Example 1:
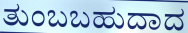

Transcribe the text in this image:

ತುಂಬಬಹುದಾದ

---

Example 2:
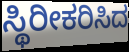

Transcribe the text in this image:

ಸ್ಥಿರೀಕರಿಸಿದ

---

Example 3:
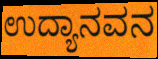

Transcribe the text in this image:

ಉದ್ಯಾನವನ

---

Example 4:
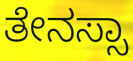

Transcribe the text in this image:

ತೇನಸ್ಸಾ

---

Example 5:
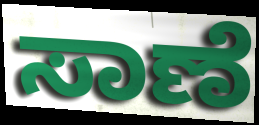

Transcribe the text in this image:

ಸಾಣೆ